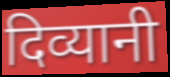
दिव्यानी